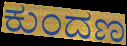
ಕುಂದಣ